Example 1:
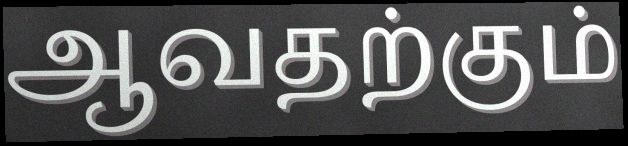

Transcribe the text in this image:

ஆவதற்கும்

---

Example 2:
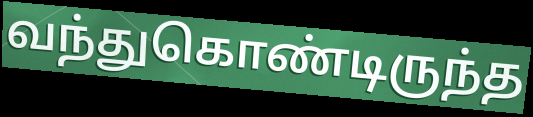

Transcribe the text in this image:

வந்துகொண்டிருந்த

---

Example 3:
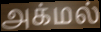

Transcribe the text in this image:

அக்மல்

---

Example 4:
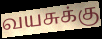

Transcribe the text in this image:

வயசுக்கு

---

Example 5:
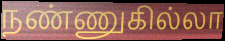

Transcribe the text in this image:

நண்ணுகில்லா